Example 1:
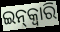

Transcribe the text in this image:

ଇନ୍‌କ୍ଵାରି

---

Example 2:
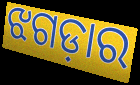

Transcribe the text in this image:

ଝଗଡ଼ାର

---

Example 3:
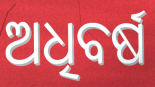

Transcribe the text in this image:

ଅଧିବର୍ଷ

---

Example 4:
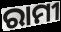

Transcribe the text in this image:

ରାମୀ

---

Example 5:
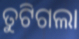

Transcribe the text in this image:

ତୁଟିଗଲା